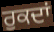
ਰੁਕਦਾਂ